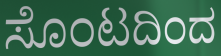
ಸೊಂಟದಿಂದ